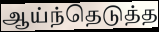
ஆய்ந்தெடுத்த